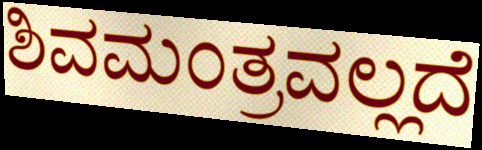
ಶಿವಮಂತ್ರವಲ್ಲದೆ